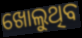
ଖୋଲୁଥିବ